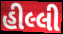
હીલ્લી